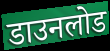
डाउनलोड